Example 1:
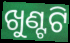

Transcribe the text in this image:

ଖୁଣ୍ଟଟି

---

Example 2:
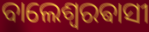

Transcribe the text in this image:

ବାଲେଶ୍ଵରଵାସୀ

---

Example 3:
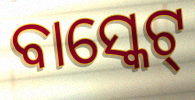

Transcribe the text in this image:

ବାସ୍କେଟ୍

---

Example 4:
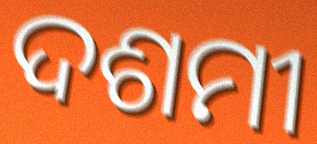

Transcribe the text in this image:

ଦଶମୀ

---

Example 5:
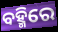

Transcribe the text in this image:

ବହ୍ମିରେ